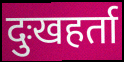
दुःखहर्ता